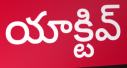
యాక్టివ్